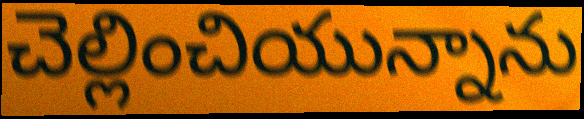
చెల్లించియున్నాను